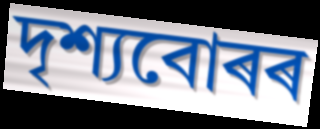
দৃশ্যবোৰৰ